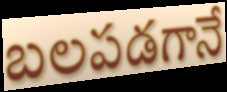
బలపడగానే